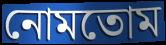
নোমতোম